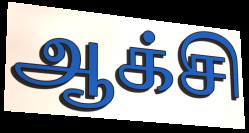
ஆக்சி